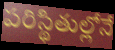
పరిస్థితుల్లోనే